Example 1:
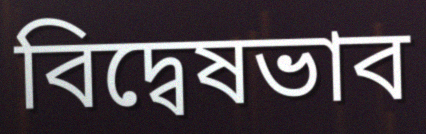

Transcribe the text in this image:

বিদ্বেষভাব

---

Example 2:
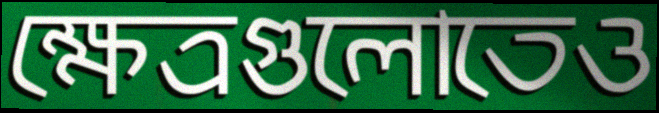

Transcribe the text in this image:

ক্ষেত্রগুলোতেও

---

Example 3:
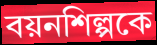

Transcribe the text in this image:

বয়নশিল্পকে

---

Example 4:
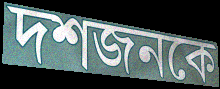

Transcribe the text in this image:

দশজনকে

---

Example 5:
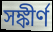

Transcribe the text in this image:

সঙ্কীর্ণ